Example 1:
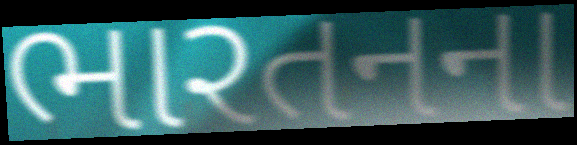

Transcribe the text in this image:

ભારતનના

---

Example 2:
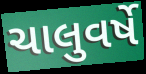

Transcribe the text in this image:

ચાલુવર્ષે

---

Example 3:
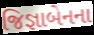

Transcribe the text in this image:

જિજ્ઞાબેનના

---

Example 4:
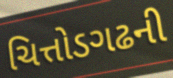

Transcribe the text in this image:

ચિત્તોડગઢની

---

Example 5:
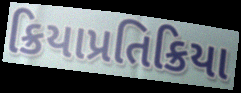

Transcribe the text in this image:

ક્રિયાપ્રતિક્રિયા